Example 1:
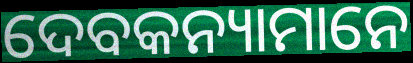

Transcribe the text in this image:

ଦେବକନ୍ୟାମାନେ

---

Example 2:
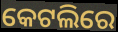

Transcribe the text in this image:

କେଟଲିରେ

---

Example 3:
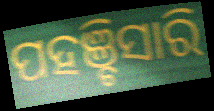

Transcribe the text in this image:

ପହଞ୍ଚିସାରି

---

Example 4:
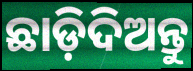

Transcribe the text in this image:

ଛାଡ଼ିଦିଅନ୍ତୁ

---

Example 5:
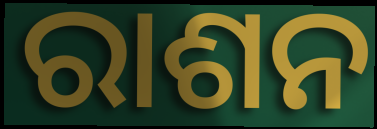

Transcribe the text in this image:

ରାଶନ